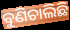
ବୁଣିଚାଲିଛି